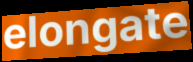
elongate